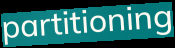
partitioning